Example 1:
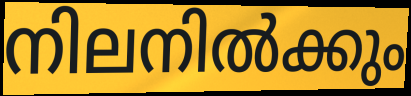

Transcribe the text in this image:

നിലനിൽക്കും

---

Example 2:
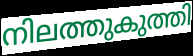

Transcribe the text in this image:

നിലത്തുകുത്തി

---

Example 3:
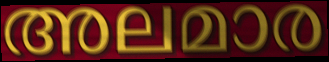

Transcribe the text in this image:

അലമാര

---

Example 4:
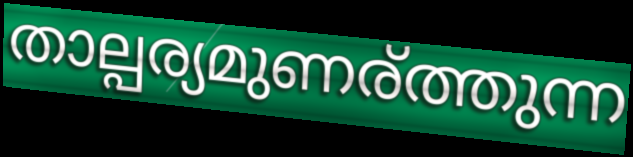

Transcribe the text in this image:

താല്പര്യമുണര്ത്തുന്ന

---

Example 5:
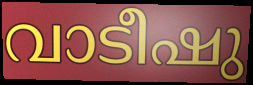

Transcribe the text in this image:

വാടീഷു